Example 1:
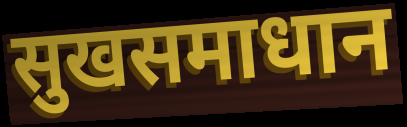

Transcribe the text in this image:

सुखसमाधान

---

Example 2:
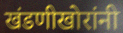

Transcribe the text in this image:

खंडणीखोरांनी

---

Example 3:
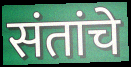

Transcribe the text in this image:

संतांचे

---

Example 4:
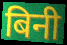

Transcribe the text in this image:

बिनी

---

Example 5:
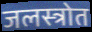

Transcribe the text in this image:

जलस्त्रोत